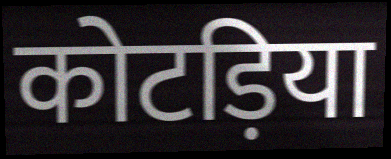
कोटड़िया